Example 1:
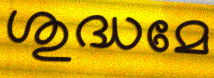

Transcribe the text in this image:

ശുദ്ധമേ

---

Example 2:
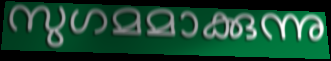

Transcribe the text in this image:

സുഗമമാക്കുന്നു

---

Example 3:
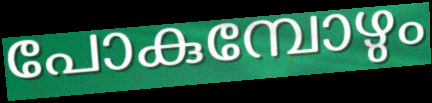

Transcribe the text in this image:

പോകുമ്പോഴും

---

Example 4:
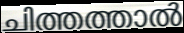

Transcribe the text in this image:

ചിത്തത്താൽ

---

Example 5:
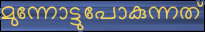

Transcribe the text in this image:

മുന്നോട്ടുപോകുന്നത്